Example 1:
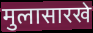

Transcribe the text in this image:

मुलासारखे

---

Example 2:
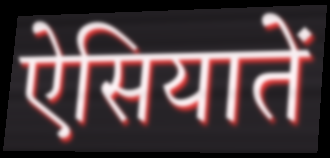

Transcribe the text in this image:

ऐसियातें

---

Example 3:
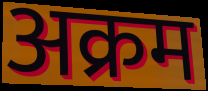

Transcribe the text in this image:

अक्रम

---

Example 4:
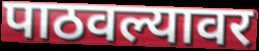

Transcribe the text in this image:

पाठवल्यावर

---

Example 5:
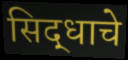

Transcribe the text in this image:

सिद्धाचे